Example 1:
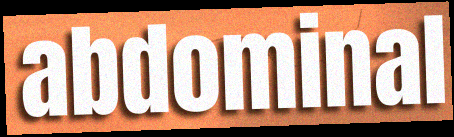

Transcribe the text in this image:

abdominal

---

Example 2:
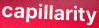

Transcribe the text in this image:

capillarity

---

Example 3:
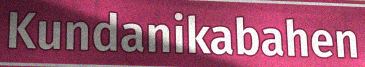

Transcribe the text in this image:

Kundanikabahen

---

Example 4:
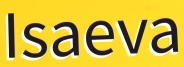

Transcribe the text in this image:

Isaeva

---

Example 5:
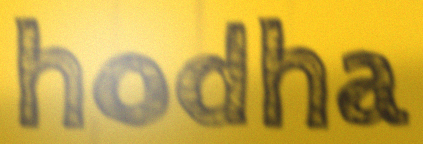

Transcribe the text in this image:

hodha